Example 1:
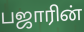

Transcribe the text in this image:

பஜாரின்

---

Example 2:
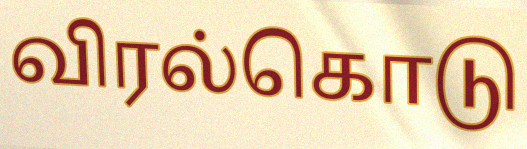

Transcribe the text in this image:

விரல்கொடு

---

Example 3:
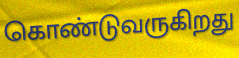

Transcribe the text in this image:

கொண்டுவருகிறது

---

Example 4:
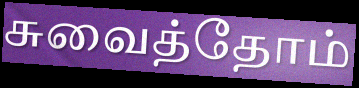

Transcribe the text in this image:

சுவைத்தோம்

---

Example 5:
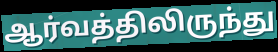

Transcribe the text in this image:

ஆர்வத்திலிருந்து